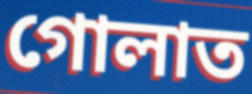
গোলাত